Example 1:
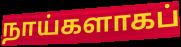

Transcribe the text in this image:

நாய்களாகப்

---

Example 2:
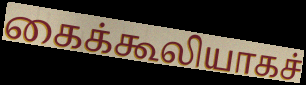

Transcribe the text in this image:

கைக்கூலியாகச்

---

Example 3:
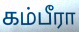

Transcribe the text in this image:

கம்பீரா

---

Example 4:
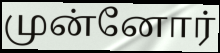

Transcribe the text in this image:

முன்னோர்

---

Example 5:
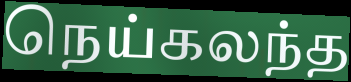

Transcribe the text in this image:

நெய்கலந்த